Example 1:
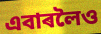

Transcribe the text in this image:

এবাৰলৈও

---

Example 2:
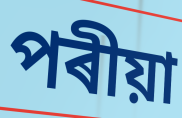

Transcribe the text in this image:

পৰীয়া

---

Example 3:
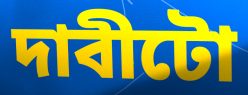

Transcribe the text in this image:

দাবীটো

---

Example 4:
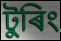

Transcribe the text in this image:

টুৰিং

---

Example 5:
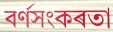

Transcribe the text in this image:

বৰ্ণসংকৰতা